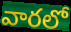
వారలో